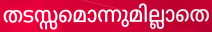
തടസ്സമൊന്നുമില്ലാതെ